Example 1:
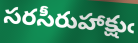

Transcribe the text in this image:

సరసీరుహాక్షుఁ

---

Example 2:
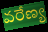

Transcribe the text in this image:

వరేణ్య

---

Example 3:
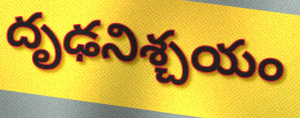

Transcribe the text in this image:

దృఢనిశ్చయం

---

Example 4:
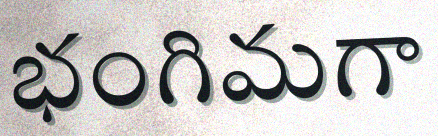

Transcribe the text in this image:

భంగిమగా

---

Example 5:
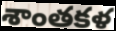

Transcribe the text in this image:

శాంతకళ